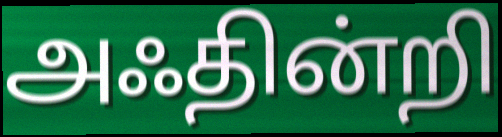
அஃதின்றி